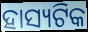
ହାସ୍ୟଟିକ